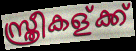
സ്ത്രീകള്ക്ക്